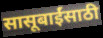
सासूबाईंसाठी